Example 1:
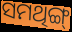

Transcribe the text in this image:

ସମଥିଙ୍ଗ୍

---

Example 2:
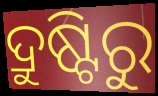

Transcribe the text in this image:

ଦ୍ରୁଷ୍ଟିରୁ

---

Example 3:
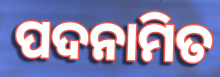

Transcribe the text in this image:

ପଦନାମିତ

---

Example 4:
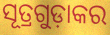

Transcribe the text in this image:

ସୂତ୍ରଗୁଡ଼ାକର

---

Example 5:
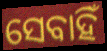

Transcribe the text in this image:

ସେବାହିଁ